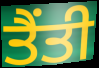
ਤੈਂਤੀ